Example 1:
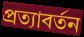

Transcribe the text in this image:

প্রত্যাবর্তন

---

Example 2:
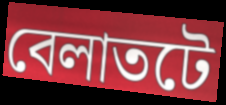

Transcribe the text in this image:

বেলাতটে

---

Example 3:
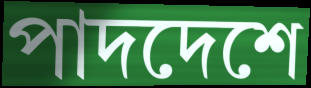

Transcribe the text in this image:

পাদদেশে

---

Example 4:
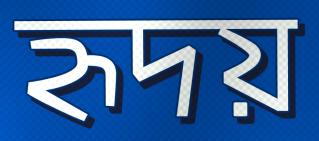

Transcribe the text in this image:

হৃদয়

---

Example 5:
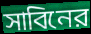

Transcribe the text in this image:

সাবিনের